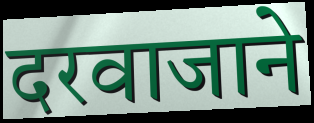
दरवाजाने